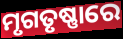
ମୃଗତୃଷ୍ଣାରେ